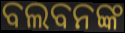
ବଲବନଙ୍କ